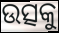
ଉତ୍ସକୁ